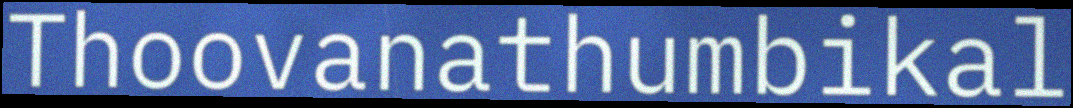
Thoovanathumbikal